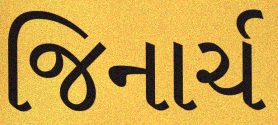
જિનાર્ચ